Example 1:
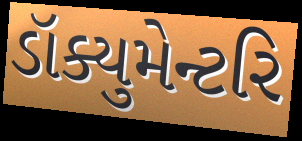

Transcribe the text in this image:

ડૉક્યુમેન્ટરિ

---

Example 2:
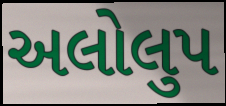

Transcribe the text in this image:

અલોલુપ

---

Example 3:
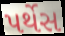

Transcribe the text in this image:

પર્થેસ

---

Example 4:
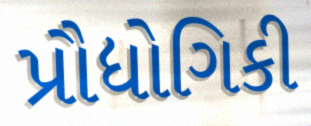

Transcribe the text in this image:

પ્રૌદ્યોગિકી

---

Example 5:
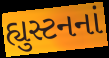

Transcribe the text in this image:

હ્યુસ્ટનનાં